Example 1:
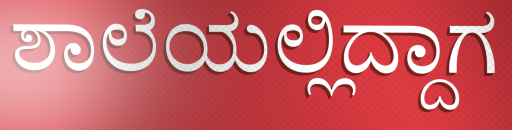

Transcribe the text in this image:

ಶಾಲೆಯಲ್ಲಿದ್ದಾಗ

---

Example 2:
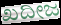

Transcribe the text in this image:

ಖದೀಜ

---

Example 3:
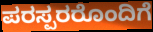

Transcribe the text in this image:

ಪರಸ್ಪರರೊಂದಿಗೆ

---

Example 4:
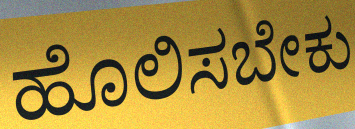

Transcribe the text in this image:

ಹೊಲಿಸಬೇಕು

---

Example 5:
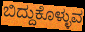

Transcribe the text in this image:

ಬಿದ್ದುಕೊಳ್ಳುವ